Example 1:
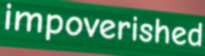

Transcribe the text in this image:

impoverished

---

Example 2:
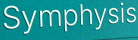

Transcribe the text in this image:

Symphysis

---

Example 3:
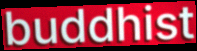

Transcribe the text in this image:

buddhist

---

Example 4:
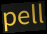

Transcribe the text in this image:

pell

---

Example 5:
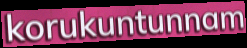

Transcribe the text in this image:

korukuntunnam